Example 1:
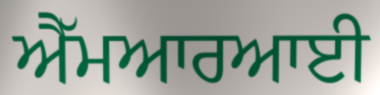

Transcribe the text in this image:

ਐੱਮਆਰਆਈ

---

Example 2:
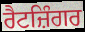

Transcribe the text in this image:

ਰੈਟਜ਼ਿੰਗਰ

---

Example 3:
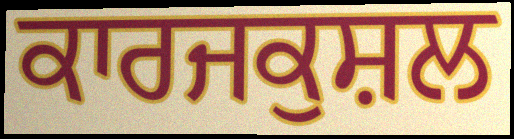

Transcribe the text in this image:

ਕਾਰਜਕੁਸ਼ਲ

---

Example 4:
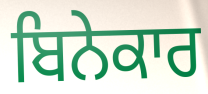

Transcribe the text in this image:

ਬਿਨੇਕਾਰ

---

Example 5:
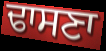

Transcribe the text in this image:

ਢਾਸਣਾ